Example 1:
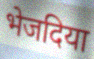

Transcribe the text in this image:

भेजदिया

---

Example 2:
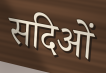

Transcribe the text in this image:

सदिओं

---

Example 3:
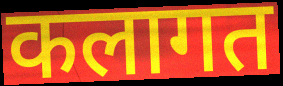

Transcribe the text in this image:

कलागत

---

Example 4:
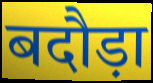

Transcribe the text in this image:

बदौड़ा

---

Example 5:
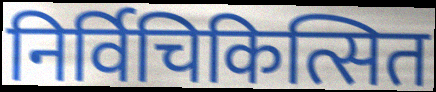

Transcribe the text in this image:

निर्विचिकित्सित